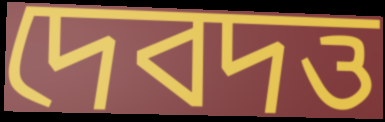
দেবদত্ত